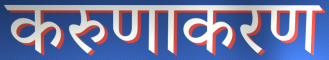
करुणाकरण